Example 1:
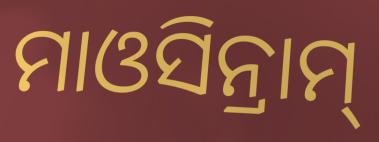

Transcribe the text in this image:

ମାଓସିନ୍ରାମ୍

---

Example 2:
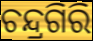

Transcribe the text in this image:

ଚନ୍ଦ୍ରଗିରି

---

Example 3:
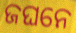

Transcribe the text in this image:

ଜଘନେ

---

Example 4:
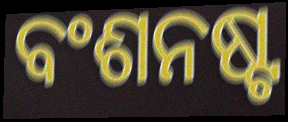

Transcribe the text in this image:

ବଂଶନଷ୍ଟ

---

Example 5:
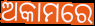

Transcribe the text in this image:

ଅକାମରେ